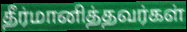
தீர்மானித்தவர்கள்